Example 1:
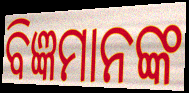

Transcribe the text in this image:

ବିଜ୍ଞମାନଙ୍କ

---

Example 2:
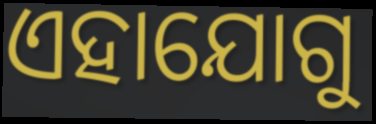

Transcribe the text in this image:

ଏହାଯୋଗୁ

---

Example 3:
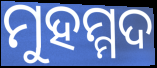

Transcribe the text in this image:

ମୁହମ୍ମଦ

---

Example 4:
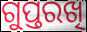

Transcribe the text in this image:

ଗୁପ୍ତରଖି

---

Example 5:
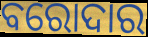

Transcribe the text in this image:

ବରୋଦାର